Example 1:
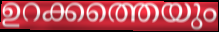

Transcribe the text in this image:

ഉറക്കത്തെയും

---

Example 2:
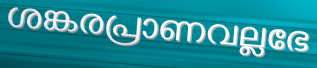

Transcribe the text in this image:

ശങ്കരപ്രാണവല്ലഭേ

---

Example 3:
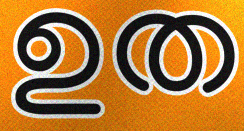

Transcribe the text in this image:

ഉത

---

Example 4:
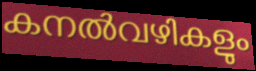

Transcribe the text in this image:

കനൽവഴികളും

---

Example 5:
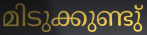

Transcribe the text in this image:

മിടുക്കുണ്ടു്